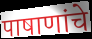
पाषाणांचे